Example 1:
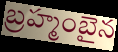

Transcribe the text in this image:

బ్రహ్మంబైన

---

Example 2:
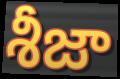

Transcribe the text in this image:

శీజా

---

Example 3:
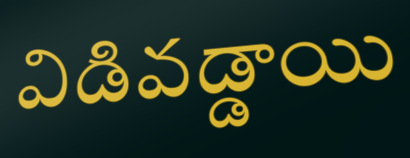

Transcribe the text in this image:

విడివడ్డాయి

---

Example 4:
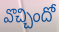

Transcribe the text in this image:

వొచ్చిందో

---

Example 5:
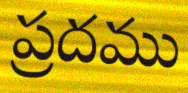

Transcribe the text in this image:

ప్రదము